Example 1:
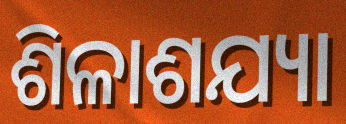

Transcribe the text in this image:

ଶିଳାଶଯ୍ୟା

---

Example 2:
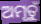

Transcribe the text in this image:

ଅମୃତୁଁ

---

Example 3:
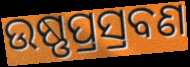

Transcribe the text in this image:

ଉଷ୍ଣପ୍ରସ୍ରବଣ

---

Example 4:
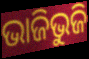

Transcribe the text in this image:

ଭାଜିଭୁଜି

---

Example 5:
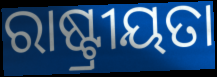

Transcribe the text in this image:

ରାଷ୍ଟ୍ରୀୟତା